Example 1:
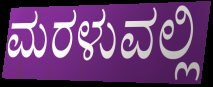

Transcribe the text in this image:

ಮರಳುವಲ್ಲಿ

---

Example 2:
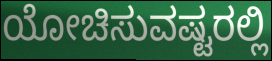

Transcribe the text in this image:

ಯೋಚಿಸುವಷ್ಟರಲ್ಲಿ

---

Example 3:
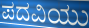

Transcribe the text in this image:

ಪದವಿಯು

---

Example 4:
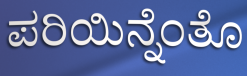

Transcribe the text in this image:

ಪರಿಯಿನ್ನೆಂತೊ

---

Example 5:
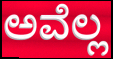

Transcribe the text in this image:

ಅವೆಲ್ಲ